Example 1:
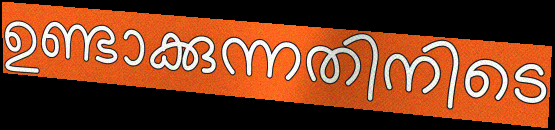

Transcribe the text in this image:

ഉണ്ടാക്കുന്നതിനിടെ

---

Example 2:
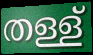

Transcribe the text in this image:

തള്ള്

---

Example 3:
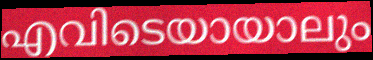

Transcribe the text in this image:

എവിടെയായാലും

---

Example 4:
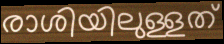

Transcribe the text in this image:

രാശിയിലുള്ളത്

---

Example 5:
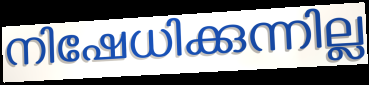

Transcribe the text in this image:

നിഷേധിക്കുന്നില്ല